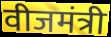
वीजमंत्री